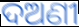
ଦଅଣୀ